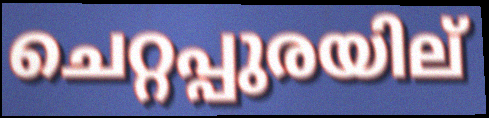
ചെറ്റപ്പുരയില്